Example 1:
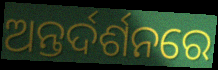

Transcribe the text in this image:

ଅନ୍ତର୍ଦର୍ଶନରେ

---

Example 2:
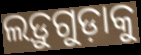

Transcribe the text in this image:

ଲଡ଼ୁଗୁଡ଼ାକୁ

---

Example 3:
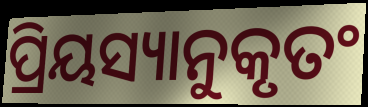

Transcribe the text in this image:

ପ୍ରିୟସ୍ୟାନୁକୃତଂ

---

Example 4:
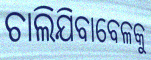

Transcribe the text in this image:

ଚାଲିଯିବାବେଳକୁ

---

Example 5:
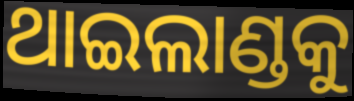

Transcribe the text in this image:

ଥାଇଲାଣ୍ଡକୁ